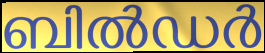
ബിൽഡർ